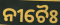
ନୀଚୈଃ